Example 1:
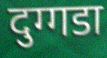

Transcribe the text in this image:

दुग्गडा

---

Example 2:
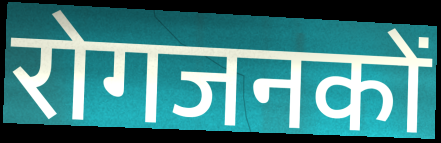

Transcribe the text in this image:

रोगजनकों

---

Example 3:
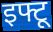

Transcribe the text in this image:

इफ्टू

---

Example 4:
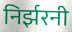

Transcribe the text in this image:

निर्झरनी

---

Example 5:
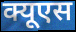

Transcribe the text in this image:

क्यूएस